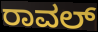
ರಾವಲ್